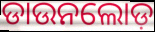
ଡାଉନଲୋଡ଼